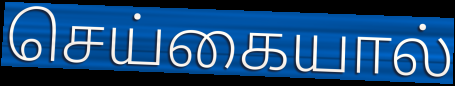
செய்கையால்